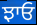
ਝਾਓ